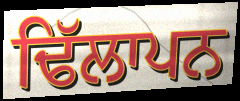
ਢਿੱਲਾਪਨ